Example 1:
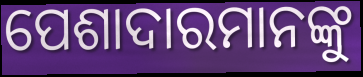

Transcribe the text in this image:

ପେଶାଦାରମାନଙ୍କୁ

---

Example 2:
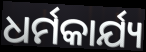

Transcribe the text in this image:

ଧର୍ମକାର୍ଯ୍ୟ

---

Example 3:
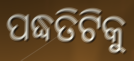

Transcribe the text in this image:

ପଦ୍ଧତିଟିକୁ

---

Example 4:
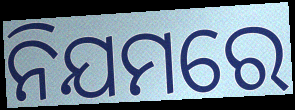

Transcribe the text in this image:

ନିଯମରେ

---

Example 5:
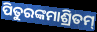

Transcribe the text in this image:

ପିତୁରଙ୍କମାଶ୍ରିତମ୍